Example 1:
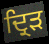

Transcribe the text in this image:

ਦ੍ਰਿੜ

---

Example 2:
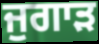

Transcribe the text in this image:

ਜੁਗਾੜ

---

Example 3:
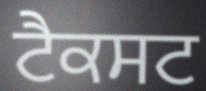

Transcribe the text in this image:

ਟੈਕਸਟ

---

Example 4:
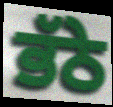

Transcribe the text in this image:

ਭੱਠੇ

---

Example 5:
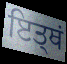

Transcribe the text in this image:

ਇਤ੍ਥਂ